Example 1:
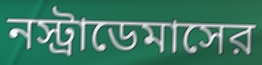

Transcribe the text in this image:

নস্ট্রাডেমাসের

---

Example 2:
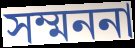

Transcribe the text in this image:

সম্মননা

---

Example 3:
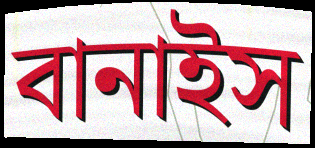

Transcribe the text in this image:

বানাইস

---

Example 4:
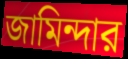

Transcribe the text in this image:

জামিন্দার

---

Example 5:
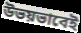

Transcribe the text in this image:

উভয়ভাবেই